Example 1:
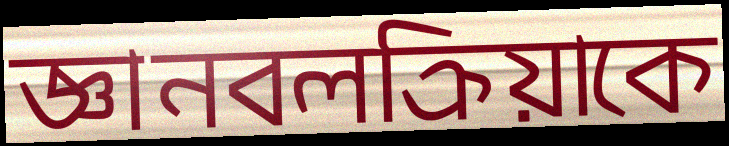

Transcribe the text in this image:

জ্ঞানবলক্রিয়াকে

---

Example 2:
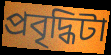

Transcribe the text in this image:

প্রবৃদ্ধিটা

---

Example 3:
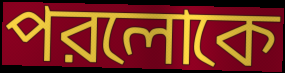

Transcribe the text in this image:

পরলোকে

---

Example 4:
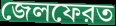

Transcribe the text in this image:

জেলফেরত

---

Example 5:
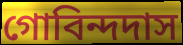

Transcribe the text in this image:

গোবিন্দদাস